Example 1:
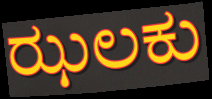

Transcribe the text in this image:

ಝಲಕು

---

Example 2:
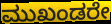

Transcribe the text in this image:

ಮುಖಂಡರೇ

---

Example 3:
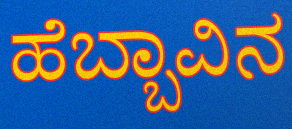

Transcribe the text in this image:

ಹೆಬ್ಬಾವಿನ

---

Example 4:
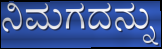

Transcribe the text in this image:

ನಿಮಗದನ್ನು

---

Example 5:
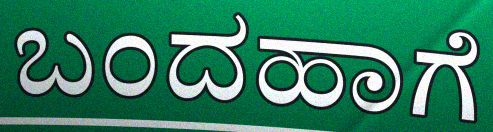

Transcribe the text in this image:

ಬಂದಹಾಗೆ